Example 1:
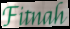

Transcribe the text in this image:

Fitnah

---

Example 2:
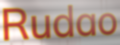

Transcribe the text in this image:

Rudao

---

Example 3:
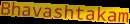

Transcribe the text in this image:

Bhavashtakam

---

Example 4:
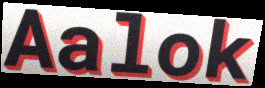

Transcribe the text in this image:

Aalok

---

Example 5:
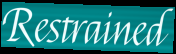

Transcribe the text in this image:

Restrained